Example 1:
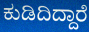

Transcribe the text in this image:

ಕುಡಿದಿದ್ದಾರೆ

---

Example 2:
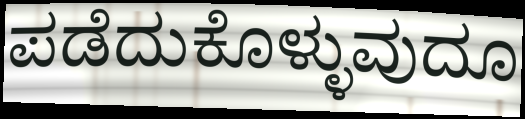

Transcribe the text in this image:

ಪಡೆದುಕೊಳ್ಳುವುದೂ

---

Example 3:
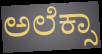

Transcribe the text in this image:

ಅಲೆಕ್ಸಾ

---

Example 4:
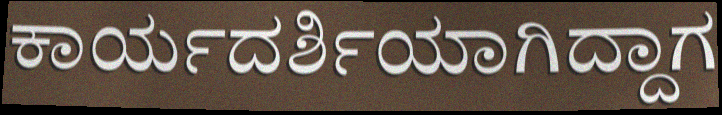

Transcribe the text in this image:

ಕಾರ್ಯದರ್ಶಿಯಾಗಿದ್ದಾಗ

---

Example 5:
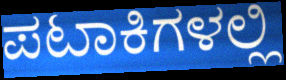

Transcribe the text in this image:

ಪಟಾಕಿಗಳಲ್ಲಿ